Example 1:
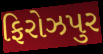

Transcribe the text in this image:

ફિરોઝપુર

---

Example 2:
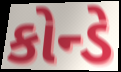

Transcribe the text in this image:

કોન્ડે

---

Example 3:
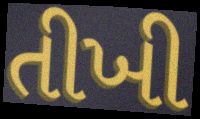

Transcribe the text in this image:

તીખી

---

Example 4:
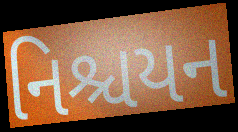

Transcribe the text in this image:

નિશ્ચયન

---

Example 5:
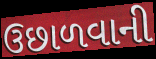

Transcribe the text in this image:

ઉછાળવાની